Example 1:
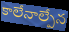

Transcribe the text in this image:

కాలేనాల్పేన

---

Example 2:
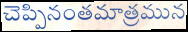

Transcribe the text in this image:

చెప్పినంతమాత్రమున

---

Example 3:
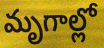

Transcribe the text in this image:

మృగాల్లో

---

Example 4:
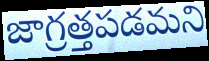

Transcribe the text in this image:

జాగ్రత్తపడమని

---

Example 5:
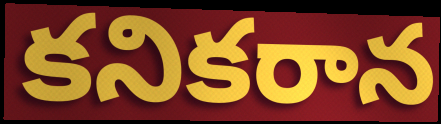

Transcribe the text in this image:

కనికరాన